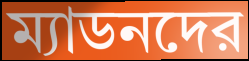
ম্যাডনদের